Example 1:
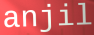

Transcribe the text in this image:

anjil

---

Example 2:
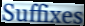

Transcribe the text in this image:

Suffixes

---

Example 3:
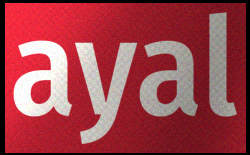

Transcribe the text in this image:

ayal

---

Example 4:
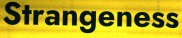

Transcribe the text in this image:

Strangeness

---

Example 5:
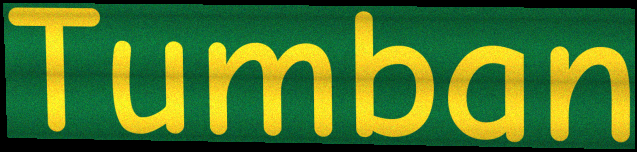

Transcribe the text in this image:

Tumban